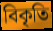
বিকৃতি